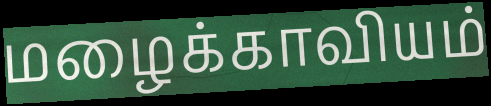
மழைக்காவியம்